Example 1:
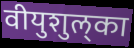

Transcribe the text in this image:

वीयुशुल्का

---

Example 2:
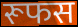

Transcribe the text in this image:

रूफस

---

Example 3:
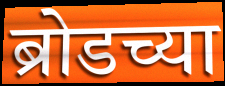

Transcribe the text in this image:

ब्रोडच्या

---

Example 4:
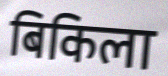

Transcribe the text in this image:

बिकिला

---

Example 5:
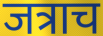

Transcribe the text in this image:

जत्राच